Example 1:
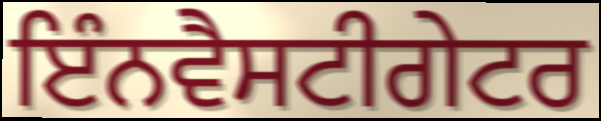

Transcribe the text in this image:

ਇੰਨਵੈਸਟੀਗੇਟਰ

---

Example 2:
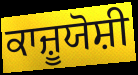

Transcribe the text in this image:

ਕਾਜ਼ੂਯੋਸ਼ੀ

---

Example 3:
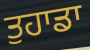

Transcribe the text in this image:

ਤੁਹਾਡਾ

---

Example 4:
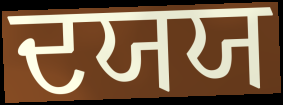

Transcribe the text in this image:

ਦਯਯ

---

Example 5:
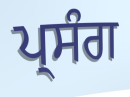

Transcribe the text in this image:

ਪ੍ਸੰਗ